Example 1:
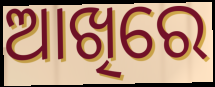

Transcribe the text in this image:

ଆଖିରେ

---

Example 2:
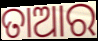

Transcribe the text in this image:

ତାଆର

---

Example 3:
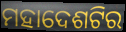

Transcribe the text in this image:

ମହାଦେଶଟିର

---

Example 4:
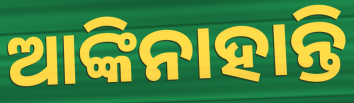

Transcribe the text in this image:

ଆଙ୍କିନାହାନ୍ତି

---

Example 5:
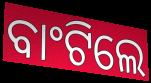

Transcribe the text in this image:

ବାଂଟିଲେ